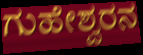
ಗುಹೇಶ್ವರನ